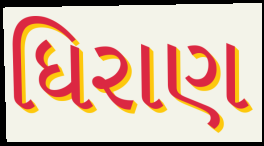
ધિરાણ